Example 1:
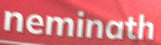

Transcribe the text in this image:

neminath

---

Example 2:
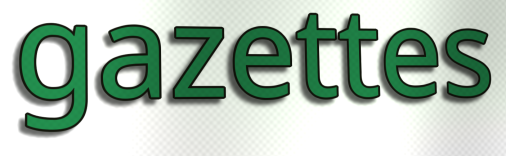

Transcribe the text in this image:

gazettes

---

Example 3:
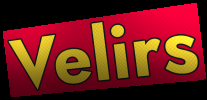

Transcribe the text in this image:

Velirs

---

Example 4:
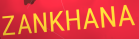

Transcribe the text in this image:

ZANKHANA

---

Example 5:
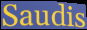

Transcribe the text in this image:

Saudis